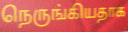
நெருங்கியதாக